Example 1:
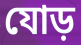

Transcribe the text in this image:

যোড়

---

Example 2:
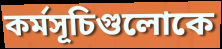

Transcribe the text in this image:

কর্মসূচিগুলোকে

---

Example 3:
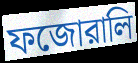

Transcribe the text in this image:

ফজোরালি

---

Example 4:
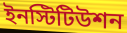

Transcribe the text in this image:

ইনস্টিটিউশন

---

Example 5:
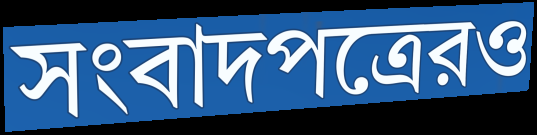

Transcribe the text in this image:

সংবাদপত্রেরও